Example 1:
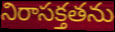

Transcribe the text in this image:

నిరాసక్తతను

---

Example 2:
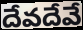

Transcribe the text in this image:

దేవదేవే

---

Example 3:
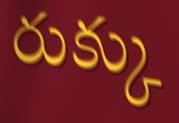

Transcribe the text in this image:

రుక్కు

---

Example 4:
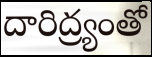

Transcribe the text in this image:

దారిద్ర్యంతో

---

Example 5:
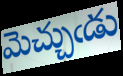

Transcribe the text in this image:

మెచ్చుఁడు